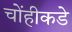
चोंहीकडे